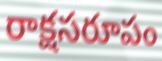
రాక్షసరూపం